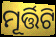
ମୂର୍ତ୍ତିଟି